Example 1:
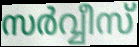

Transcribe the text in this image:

സർവ്വീസ്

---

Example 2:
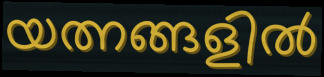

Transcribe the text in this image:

യത്നങ്ങളിൽ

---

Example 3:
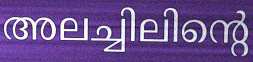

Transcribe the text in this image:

അലച്ചിലിന്റെ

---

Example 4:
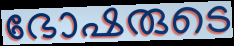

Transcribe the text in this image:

ഭോഷരുടെ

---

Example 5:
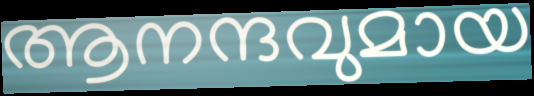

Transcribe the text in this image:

ആനന്ദവുമായ